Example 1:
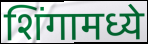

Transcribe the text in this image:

शिंगामध्ये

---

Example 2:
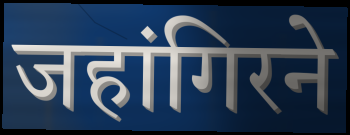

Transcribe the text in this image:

जहांगिरने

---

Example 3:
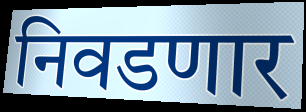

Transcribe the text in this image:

निवडणार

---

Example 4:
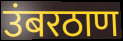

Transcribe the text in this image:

उंबरठाण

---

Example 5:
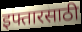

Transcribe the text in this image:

इफ्तारसाठी